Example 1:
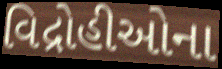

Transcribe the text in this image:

વિદ્રોહીઓના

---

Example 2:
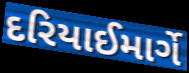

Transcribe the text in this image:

દરિયાઈમાર્ગે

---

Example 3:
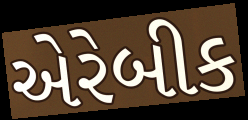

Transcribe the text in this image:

એરેબીક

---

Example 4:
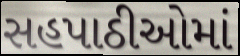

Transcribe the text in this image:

સહપાઠીઓમાં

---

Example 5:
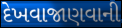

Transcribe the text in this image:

દેખવાજાણવાની